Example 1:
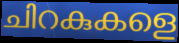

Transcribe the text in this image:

ചിറകുകളെ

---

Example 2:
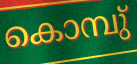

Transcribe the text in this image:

കൊമ്പു്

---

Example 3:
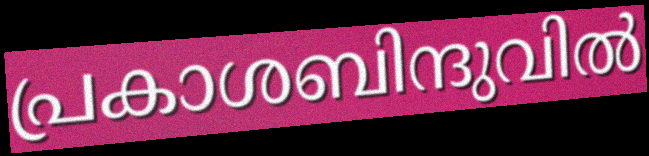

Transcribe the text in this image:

പ്രകാശബിന്ദുവിൽ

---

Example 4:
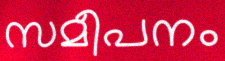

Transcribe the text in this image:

സമീപനം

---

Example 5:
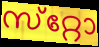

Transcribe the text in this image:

സ്‌റ്റോ